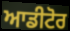
ਆਡੀਟੋਰ